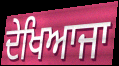
ਦੇਖਿਆਜਾ